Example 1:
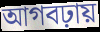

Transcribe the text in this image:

আগবঢ়ায়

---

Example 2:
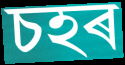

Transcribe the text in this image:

চহৰ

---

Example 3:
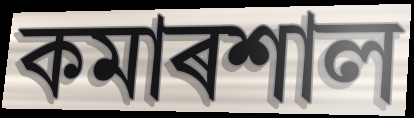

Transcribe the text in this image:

কমাৰশাল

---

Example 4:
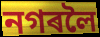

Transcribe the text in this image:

নগৰলৈ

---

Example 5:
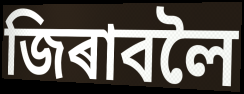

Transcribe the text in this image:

জিৰাবলৈ